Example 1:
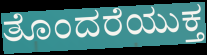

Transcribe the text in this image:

ತೊಂದರೆಯುಕ್ತ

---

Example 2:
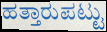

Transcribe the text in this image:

ಹತ್ತಾರುಪಟ್ಟು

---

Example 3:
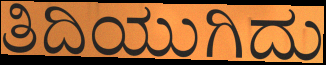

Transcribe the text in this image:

ತಿದಿಯುಗಿದು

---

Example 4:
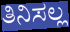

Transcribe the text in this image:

ತಿನಿಸಲ್ಲ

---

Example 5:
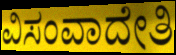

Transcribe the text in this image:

ವಿಸಂವಾದೇತಿ